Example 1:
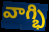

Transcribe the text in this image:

వాగ్భి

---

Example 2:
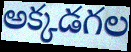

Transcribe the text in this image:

అక్కడగల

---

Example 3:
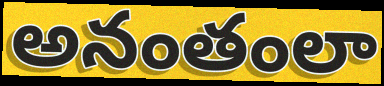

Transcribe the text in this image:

అనంతంలా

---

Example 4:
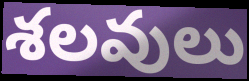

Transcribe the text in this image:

శలవులు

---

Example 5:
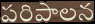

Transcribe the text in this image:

పరిపాలన